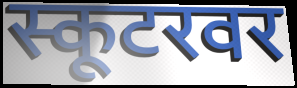
स्कूटरवर